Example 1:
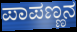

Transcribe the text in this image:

ಪಾಪಣ್ಣನ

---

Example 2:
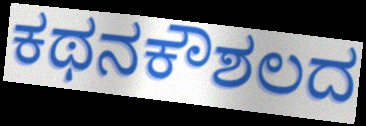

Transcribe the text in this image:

ಕಥನಕೌಶಲದ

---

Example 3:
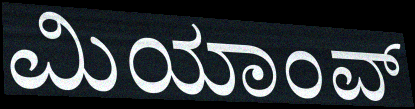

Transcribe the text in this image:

ಮಿಯಾಂವ್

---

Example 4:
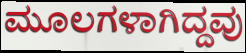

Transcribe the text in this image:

ಮೂಲಗಳಾಗಿದ್ದವು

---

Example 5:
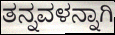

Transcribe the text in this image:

ತನ್ನವಳನ್ನಾಗಿ